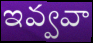
ఇవ్వవా